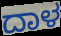
ದಾಳ